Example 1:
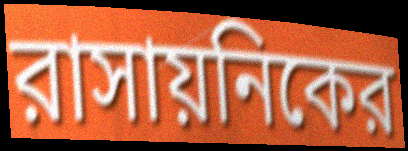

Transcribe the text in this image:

রাসায়নিকের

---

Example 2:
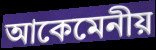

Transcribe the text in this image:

আকেমেনীয়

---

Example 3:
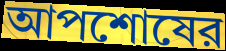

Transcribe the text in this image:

আপশোষের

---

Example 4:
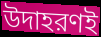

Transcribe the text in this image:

উদাহরণই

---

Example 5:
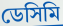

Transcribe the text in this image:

ডেসিমি